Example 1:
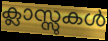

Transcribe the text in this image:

ക്ലാസ്സുകൾ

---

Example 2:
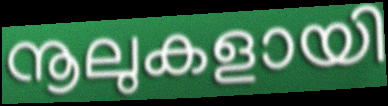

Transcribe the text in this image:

നൂലുകളായി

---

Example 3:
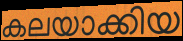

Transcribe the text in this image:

കലയാക്കിയ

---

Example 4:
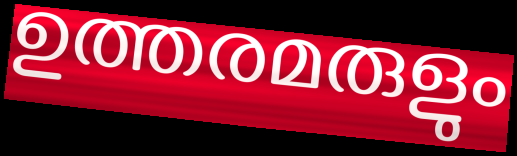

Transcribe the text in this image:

ഉത്തരമരുളും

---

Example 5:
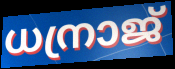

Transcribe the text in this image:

ധന്രാജ്